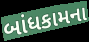
બાંધકામના